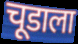
चूडाला